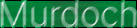
Murdoch